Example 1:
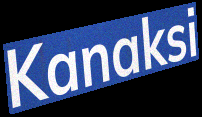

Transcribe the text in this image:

Kanaksi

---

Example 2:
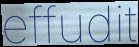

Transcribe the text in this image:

effudit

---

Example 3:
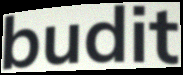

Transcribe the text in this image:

budit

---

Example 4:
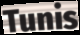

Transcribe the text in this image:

Tunis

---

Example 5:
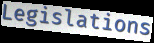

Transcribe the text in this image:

Legislations